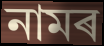
নামৰ